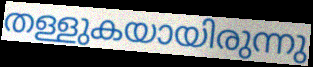
തള്ളുകയായിരുന്നു